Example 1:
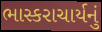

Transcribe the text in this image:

ભાસ્કરાચાર્યનું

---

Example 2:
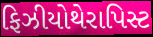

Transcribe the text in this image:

ફિઝીયોથેરાપિસ્ટ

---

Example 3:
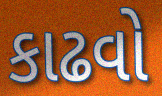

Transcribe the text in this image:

કાઢવો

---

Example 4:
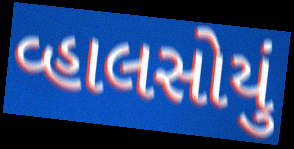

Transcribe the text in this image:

વ્હાલસોયું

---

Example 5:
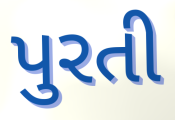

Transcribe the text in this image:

પુરતી